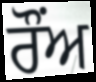
ਰੌਂਅ